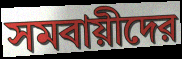
সমবায়ীদের